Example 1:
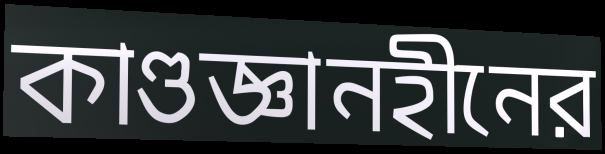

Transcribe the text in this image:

কাণ্ডজ্ঞানহীনের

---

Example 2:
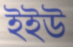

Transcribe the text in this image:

ইইউ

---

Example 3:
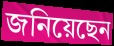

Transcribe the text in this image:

জনিয়েছেন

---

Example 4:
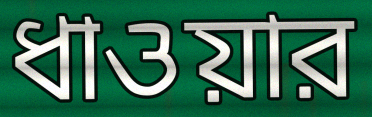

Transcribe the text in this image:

ধাওয়ার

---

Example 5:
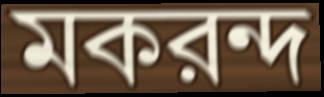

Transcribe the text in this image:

মকরন্দ